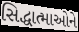
સિદ્ધાત્માઓને